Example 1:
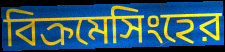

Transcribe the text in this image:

বিক্রমেসিংহের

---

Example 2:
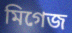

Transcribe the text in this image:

মিগেজ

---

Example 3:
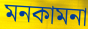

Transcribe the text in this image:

মনকামনা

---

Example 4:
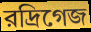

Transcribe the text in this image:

রদ্রিগেজ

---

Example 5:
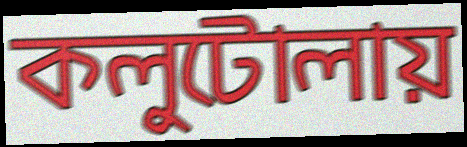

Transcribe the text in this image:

কলুটোলায়